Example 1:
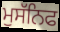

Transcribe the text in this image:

ਮੁਸੱਨਿਫ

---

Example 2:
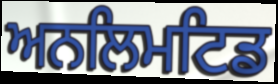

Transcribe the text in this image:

ਅਨਲਿਮਟਿਡ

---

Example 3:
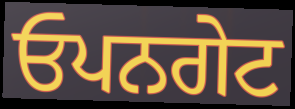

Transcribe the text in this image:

ਓਪਨਗੇਟ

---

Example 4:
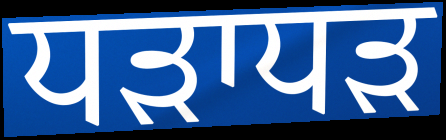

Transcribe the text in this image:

ਧੜਾਧੜ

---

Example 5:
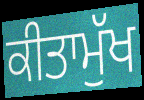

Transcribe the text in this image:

ਕੀਤਾਮੁੱਖ